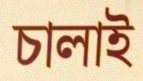
চালাই